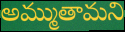
అమ్ముతామని